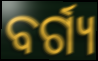
ବର୍ଗ୍ୟ